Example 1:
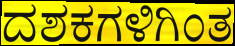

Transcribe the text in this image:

ದಶಕಗಳಿಗಿಂತ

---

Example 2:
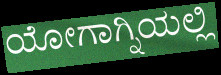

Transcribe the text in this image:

ಯೋಗಾಗ್ನಿಯಲ್ಲಿ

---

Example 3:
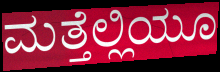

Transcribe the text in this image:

ಮತ್ತೆಲ್ಲಿಯೂ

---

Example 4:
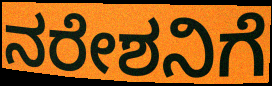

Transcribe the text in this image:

ನರೇಶನಿಗೆ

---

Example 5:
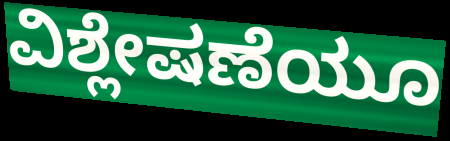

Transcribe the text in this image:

ವಿಶ್ಲೇಷಣೆಯೂ